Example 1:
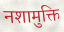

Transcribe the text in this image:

नशामुक्ति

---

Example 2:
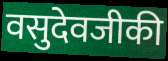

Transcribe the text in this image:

वसुदेवजीकी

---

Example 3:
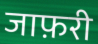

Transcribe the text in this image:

जाफ़री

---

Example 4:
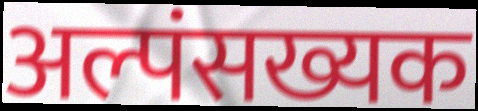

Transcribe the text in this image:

अल्पंसख्यक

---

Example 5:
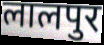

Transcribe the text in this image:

लालपुर